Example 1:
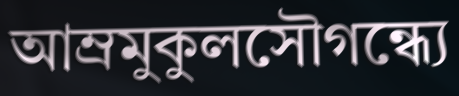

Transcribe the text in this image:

আম্রমুকুলসৌগন্ধ্যে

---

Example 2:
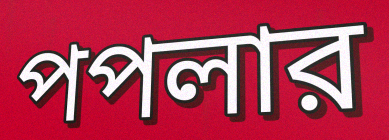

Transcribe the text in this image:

পপলার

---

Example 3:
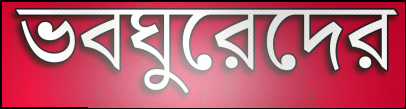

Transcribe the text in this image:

ভবঘুরেদের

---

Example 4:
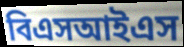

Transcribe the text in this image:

বিএসআইএস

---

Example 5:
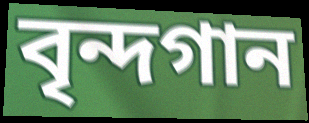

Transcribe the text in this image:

বৃন্দগান